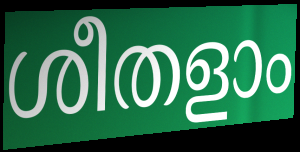
ശീതളാം